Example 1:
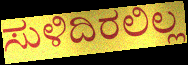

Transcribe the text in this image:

ಸುಳಿದಿರಲಿಲ್ಲ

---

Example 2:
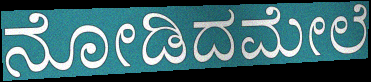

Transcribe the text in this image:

ನೋಡಿದಮೇಲೆ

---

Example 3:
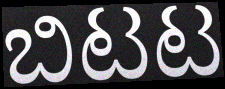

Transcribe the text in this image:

ಬಿಟಟ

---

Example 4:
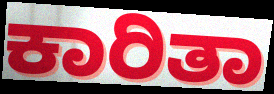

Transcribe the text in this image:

ಕಾರಿತಾ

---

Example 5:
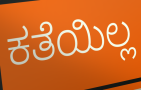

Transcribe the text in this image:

ಕತೆಯಿಲ್ಲ